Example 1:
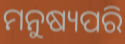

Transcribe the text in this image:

ମନୁଷ୍ୟପରି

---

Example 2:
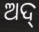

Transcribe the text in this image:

ଅଦ୍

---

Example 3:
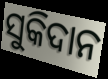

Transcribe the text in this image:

ସୁକିଦାନ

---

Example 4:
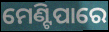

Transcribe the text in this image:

ମେଣ୍ଟିପାରେ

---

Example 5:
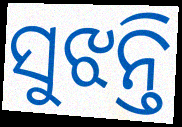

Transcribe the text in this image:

ସୁଝନ୍ତି